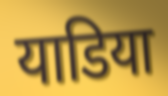
याडिया